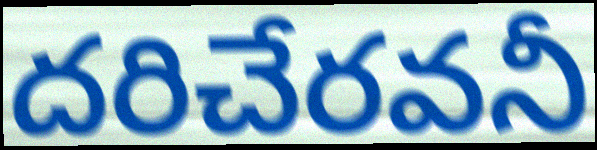
దరిచేరవనీ